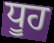
ਧੂਹ